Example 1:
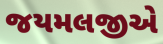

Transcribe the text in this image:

જયમલજીએ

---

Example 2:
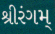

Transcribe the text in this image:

શ્રીરંગમ્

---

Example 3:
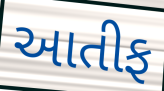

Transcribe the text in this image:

આતીફ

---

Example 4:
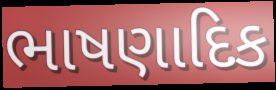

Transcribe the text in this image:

ભાષણાદિક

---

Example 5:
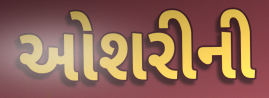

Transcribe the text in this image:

ઓશરીની